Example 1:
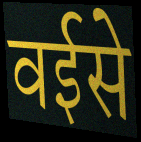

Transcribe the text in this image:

वईसे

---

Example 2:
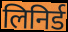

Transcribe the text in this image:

लिनिर्ड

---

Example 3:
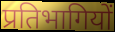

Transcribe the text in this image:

प्रतिभागियों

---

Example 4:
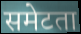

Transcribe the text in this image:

समेटता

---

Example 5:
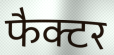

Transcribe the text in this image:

फैक्टर